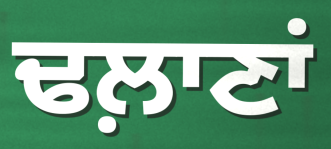
ਢਲ਼ਾਣਾਂ